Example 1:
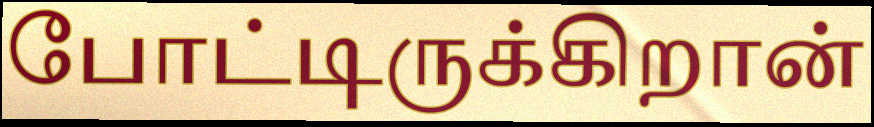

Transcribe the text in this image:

போட்டிருக்கிறான்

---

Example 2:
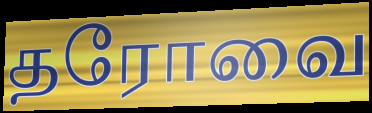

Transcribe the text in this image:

தரோவை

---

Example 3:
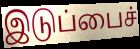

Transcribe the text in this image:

இடுப்பைச்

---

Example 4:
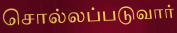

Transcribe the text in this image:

சொல்லப்படுவார்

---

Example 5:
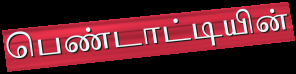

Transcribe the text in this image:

பெண்டாட்டியின்